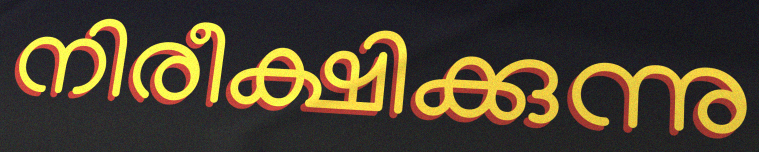
നിരീക്ഷിക്കുന്നു